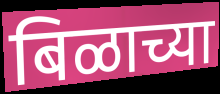
बिळाच्या